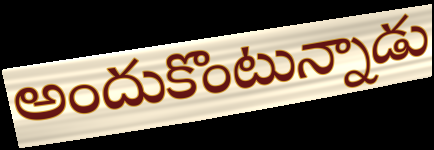
అందుకొంటున్నాడు